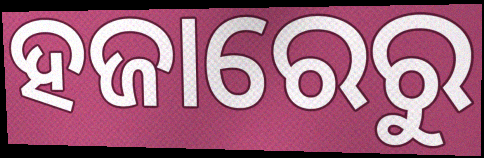
ହଜାରେରୁ